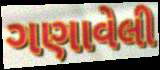
ગણાવેલી